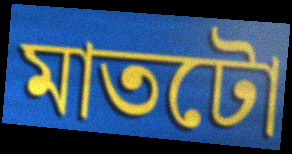
মাতটো